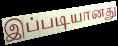
இப்படியானது